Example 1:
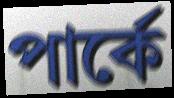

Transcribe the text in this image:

পার্কে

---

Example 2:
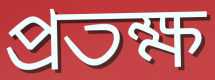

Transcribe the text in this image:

প্রতক্ষ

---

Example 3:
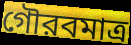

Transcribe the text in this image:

গৌরবমাত্র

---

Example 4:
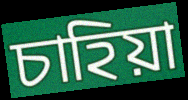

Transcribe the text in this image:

চাহিয়া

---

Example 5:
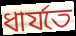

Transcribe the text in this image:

ধার্যতে